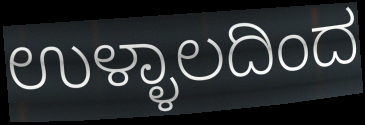
ಉಳ್ಳಾಲದಿಂದ